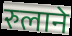
रुलाने